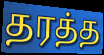
தரத்த